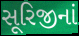
સૂરિજીનાં